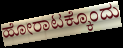
ಹೋರಾಟಕ್ಕೊಂದು